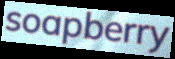
soapberry